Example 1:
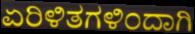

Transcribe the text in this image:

ಏರಿಳಿತಗಳಿಂದಾಗಿ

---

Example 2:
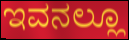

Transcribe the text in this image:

ಇವನಲ್ಲೂ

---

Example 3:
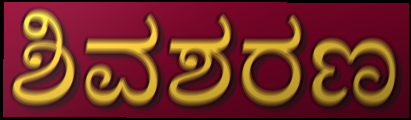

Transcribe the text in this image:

ಶಿವಶರಣ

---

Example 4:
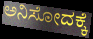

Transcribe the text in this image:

ಅನಿಸೋದಕ್ಕೆ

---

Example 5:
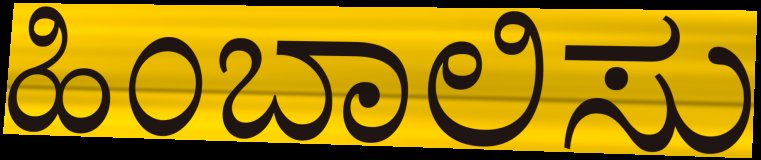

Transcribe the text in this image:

ಹಿಂಬಾಲಿಸು